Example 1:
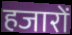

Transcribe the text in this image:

हजारों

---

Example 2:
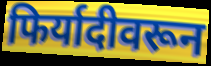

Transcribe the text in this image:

फिर्यादीवरून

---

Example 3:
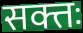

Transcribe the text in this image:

सक्तः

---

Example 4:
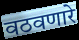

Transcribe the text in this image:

वठवणारे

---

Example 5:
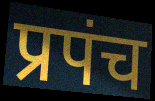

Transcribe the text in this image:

प्रपंच